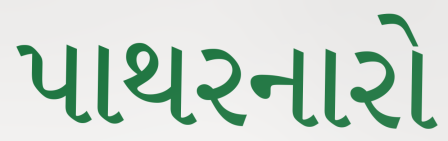
પાથરનારો